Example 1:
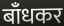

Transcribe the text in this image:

बाँधकर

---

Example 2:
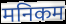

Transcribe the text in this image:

मनिकम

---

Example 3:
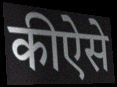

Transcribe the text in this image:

कीऐसे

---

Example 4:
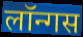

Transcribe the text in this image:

लॉन्गस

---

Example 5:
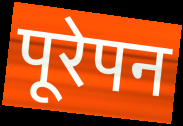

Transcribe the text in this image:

पूरेपन